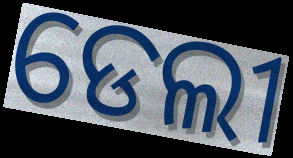
ଡେଲୀ